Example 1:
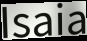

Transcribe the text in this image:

Isaia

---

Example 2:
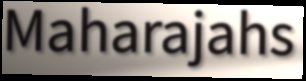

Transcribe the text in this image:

Maharajahs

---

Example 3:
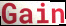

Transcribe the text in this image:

Gain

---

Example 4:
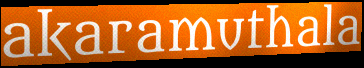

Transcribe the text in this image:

akaramuthala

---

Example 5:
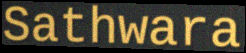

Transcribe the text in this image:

Sathwara